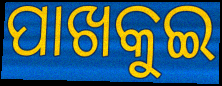
ପାଖକୁଇ